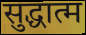
सुद्धात्म